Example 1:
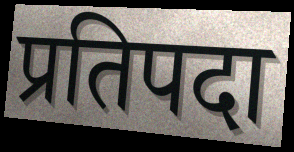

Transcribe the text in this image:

प्रतिपदा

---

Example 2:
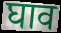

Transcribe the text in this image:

घाव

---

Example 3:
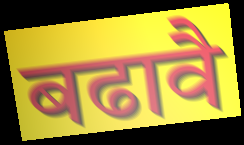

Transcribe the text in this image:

बढावै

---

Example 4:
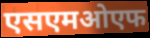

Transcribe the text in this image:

एसएमओएफ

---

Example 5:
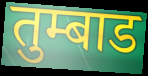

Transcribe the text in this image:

तुम्बाड